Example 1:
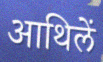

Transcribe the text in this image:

आथिलें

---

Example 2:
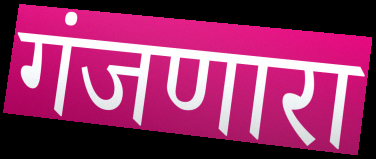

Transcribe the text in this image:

गंजणारा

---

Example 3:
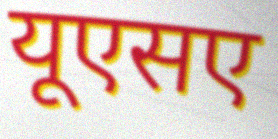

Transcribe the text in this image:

यूएसए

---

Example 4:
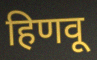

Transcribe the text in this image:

हिणवू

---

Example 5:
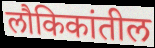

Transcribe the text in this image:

लौकिकांतील